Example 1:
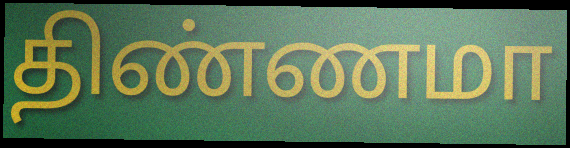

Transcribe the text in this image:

திண்ணமா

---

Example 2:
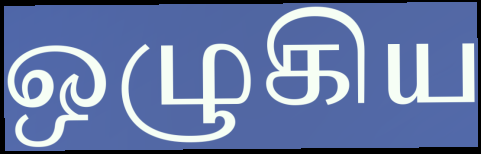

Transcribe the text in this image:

ஒழுகிய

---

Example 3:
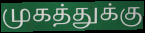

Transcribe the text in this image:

முகத்துக்கு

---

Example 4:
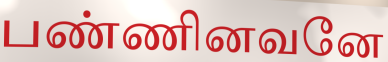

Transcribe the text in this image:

பண்ணினவனே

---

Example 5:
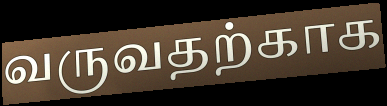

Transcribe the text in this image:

வருவதற்காக